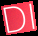
DI